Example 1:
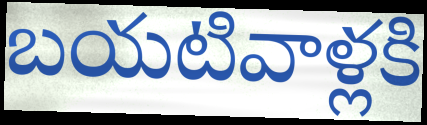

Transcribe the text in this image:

బయటివాళ్లకి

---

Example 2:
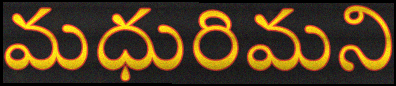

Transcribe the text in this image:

మధురిమని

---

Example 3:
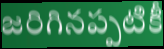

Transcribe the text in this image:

జరిగినప్పటికీ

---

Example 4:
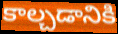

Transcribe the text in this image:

కాల్చడానికి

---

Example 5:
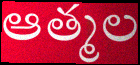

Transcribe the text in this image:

ఆత్మల